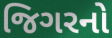
જિગરનો